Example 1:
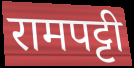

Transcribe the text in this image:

रामपट्टी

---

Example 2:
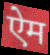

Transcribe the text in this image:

ऐम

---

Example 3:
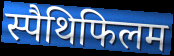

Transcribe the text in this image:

स्पैथिफिलम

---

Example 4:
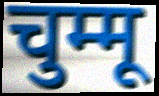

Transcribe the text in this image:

चुम्मू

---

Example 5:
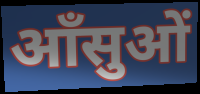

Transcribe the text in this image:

आँसुओं